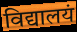
विद्यालयं